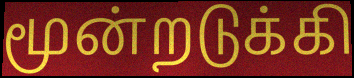
மூன்றடுக்கி